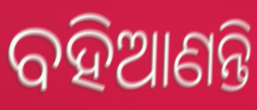
ବହିଆଣନ୍ତି